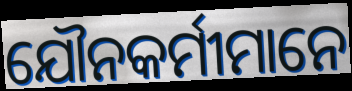
ଯୌନକର୍ମୀମାନେ